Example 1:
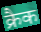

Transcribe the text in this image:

क्रैक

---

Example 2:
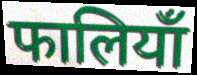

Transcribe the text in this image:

फालियाँ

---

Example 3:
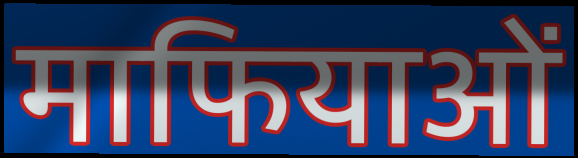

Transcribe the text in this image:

माफियाओं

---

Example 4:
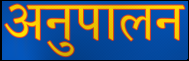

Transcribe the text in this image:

अनुपालन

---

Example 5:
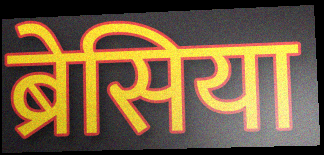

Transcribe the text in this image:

ब्रेसिया